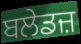
ਬਲੇਡਜ਼